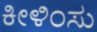
ಕೀಳಿಂಸು